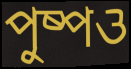
পুষ্পও